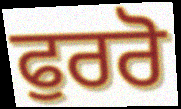
ਫੁਰਰੋ